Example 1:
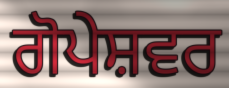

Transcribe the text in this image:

ਗੋਪੇਸ਼ਵਰ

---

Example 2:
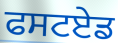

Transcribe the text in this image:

ਫਸਟਏਡ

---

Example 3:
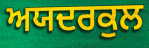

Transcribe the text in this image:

ਅਯਦਰਕੁਲ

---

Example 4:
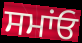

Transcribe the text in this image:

ਸਮਾਂਓ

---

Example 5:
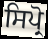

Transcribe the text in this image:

ਸਿਪ੍ਰੋ